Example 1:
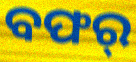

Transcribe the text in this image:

ବଫର୍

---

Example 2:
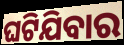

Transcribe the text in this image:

ଘଟିଯିବାର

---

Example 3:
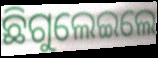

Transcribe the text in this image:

ଛିଗୁଲେଇଲେ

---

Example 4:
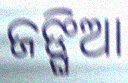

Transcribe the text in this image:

ଜଙ୍ଘିଆ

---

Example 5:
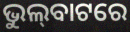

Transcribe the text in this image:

ଭୁଲ୍‌ବାଟରେ